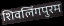
शिवलिंगपुरम